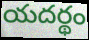
యదర్థం